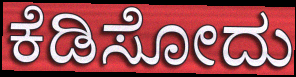
ಕೆಡಿಸೋದು